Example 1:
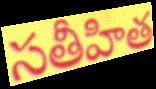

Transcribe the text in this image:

సతీహిత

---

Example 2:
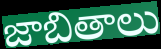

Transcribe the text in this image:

జాబితాలు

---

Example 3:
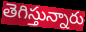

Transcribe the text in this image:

తెగిస్తున్నారు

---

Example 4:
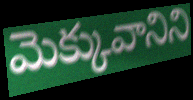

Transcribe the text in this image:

మెక్కువానిని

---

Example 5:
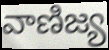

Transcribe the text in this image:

వాణిజ్య